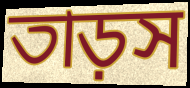
তাড়স